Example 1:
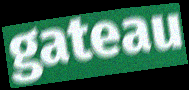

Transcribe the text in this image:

gateau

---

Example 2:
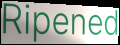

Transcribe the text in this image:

Ripened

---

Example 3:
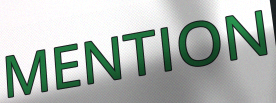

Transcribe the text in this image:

MENTION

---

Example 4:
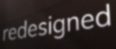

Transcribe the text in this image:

redesigned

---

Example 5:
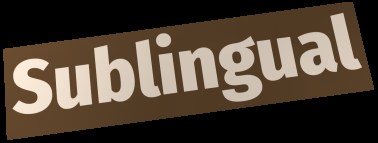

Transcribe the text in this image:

Sublingual